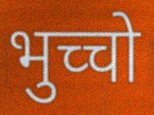
भुच्चो